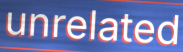
unrelated